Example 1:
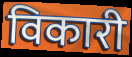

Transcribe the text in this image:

विकारी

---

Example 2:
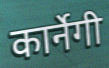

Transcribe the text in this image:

कार्नेगी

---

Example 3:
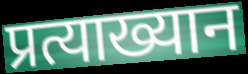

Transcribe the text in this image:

प्रत्याख्यान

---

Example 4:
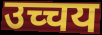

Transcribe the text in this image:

उच्चय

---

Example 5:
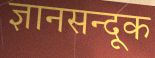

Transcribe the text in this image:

ज्ञानसन्दूक